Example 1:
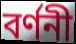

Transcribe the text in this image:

বৰ্ণনী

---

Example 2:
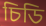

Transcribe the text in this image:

চিডি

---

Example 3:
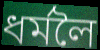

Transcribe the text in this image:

ধৰ্মলৈ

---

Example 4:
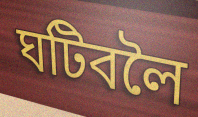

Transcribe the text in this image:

ঘটিবলৈ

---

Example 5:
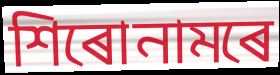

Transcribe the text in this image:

শিৰোনামৰে